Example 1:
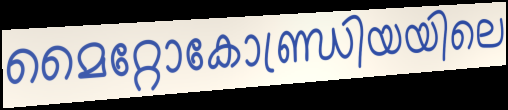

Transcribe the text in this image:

മൈറ്റോകോണ്ഡ്രിയയിലെ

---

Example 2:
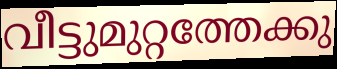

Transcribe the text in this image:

വീട്ടുമുറ്റത്തേക്കു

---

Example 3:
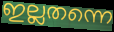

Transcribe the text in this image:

ഇല്ലതന്നെ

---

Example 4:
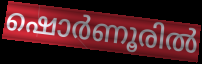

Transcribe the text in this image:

ഷൊർണൂരിൽ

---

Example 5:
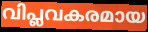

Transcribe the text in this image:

വിപ്ലവകരമായ